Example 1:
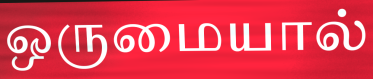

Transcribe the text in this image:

ஒருமையால்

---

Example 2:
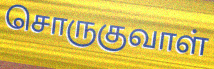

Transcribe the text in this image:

சொருகுவாள்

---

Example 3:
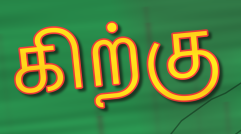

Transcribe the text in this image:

கிற்கு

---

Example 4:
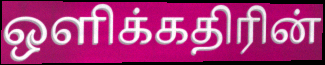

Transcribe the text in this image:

ஒளிக்கதிரின்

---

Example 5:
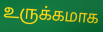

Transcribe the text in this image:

உருக்கமாக